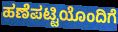
ಹಣೆಪಟ್ಟಿಯೊಂದಿಗೆ